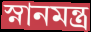
স্নানমন্ত্র